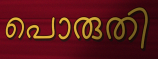
പൊരുതി